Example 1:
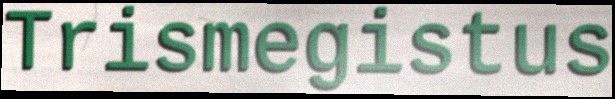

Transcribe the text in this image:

Trismegistus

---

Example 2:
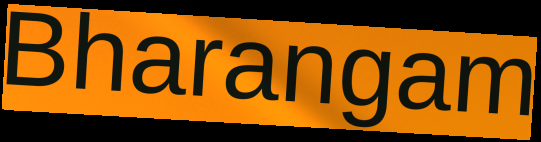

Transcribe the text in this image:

Bharangam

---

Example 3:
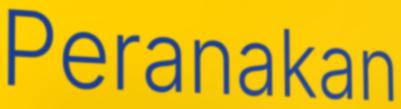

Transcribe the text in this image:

Peranakan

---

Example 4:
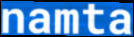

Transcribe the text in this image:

namta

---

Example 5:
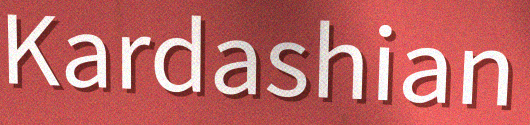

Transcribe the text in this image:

Kardashian